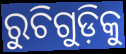
ରୁଚିଗୁଡ଼ିକୁ